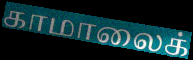
காமாலைக்